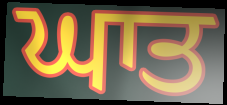
ਘਾਤ